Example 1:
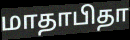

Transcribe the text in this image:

மாதாபிதா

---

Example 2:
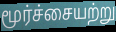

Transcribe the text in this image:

மூர்ச்சையற்று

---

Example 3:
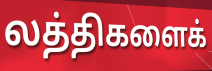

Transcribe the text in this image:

லத்திகளைக்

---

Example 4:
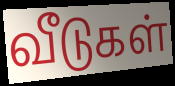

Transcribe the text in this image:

வீடுகள்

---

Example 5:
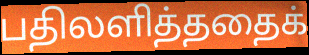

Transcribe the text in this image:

பதிலளித்ததைக்